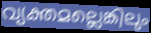
വ്യക്തമല്ലെങ്കിലും